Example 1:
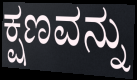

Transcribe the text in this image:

ಕ್ಷಣವನ್ನು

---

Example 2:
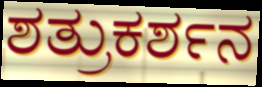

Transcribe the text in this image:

ಶತ್ರುಕರ್ಶನ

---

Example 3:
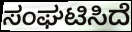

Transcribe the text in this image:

ಸಂಘಟಿಸಿದೆ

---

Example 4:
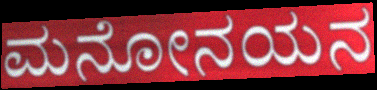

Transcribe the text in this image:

ಮನೋನಯನ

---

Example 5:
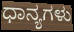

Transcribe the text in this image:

ಧಾನ್ಯಗಳು